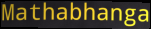
Mathabhanga